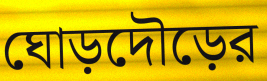
ঘোড়দৌড়ের